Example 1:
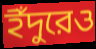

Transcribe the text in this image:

ইঁদুরেও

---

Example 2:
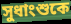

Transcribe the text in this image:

সুধাংশুকে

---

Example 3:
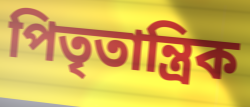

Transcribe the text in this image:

পিতৃতান্ত্রিক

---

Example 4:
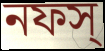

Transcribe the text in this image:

নফস্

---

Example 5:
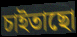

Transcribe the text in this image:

চাইতাছো